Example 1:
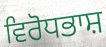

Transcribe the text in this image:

ਵਿਰੋਧਭਾਸ਼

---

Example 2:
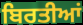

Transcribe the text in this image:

ਬਿਰਤੀਆਂ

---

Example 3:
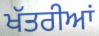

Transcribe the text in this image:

ਖੱਤਰੀਆਂ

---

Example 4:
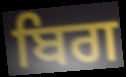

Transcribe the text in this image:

ਬਿਗ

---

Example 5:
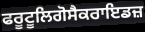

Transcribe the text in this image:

ਫਰੂਟੂਲਿਗੋਸੈਕਰਾਇਡਜ਼